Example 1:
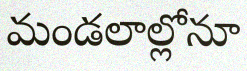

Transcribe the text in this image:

మండలాల్లోనూ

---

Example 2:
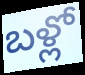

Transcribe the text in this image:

బళ్లో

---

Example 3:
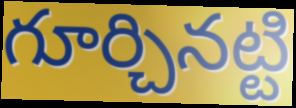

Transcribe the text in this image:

గూర్చినట్టి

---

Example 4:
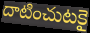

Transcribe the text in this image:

దాటించుటకై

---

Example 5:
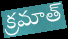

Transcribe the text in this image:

క్రమాత్